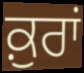
ਕ਼ੁਰਾਂ